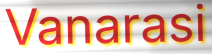
Vanarasi